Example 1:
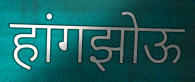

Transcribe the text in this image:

हांगझोऊ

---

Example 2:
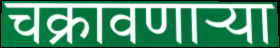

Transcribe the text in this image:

चक्रावणाऱ्या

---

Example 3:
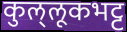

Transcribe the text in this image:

कुल्लूकभट्ट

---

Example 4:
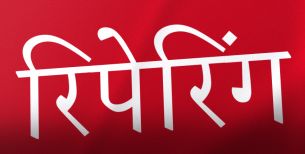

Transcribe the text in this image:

रिपेरिंग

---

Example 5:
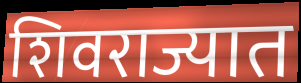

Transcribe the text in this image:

शिवराज्यात